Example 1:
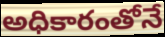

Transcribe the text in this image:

అధికారంతోనే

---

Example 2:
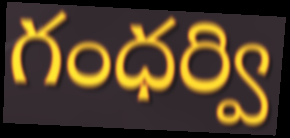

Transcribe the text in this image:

గంధర్వి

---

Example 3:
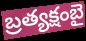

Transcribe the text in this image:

బ్రత్యక్షంబై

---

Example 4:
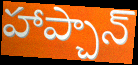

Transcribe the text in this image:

హాప్చాన్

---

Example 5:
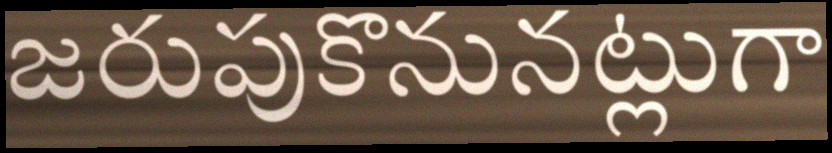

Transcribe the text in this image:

జరుపుకొనునట్లుగా